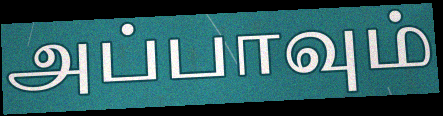
அப்பாவும்